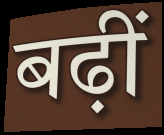
बढ़ीं